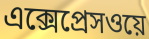
এক্সেপ্রেসওয়ে